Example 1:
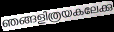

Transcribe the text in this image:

ഞങ്ങളിത്രയകലേക്കു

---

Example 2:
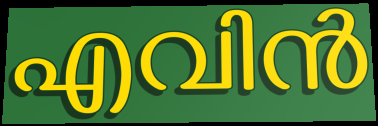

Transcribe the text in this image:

എവിൻ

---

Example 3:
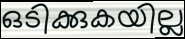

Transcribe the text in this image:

ഒടിക്കുകയില്ല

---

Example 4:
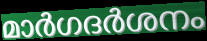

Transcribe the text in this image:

മാർഗദർശനം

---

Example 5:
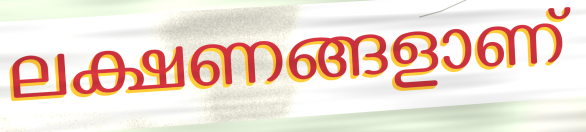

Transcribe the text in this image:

ലക്ഷണങ്ങളാണ്